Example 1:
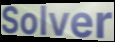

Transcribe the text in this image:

Solver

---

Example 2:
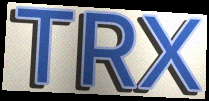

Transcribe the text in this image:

TRX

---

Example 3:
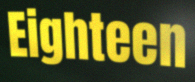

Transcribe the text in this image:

Eighteen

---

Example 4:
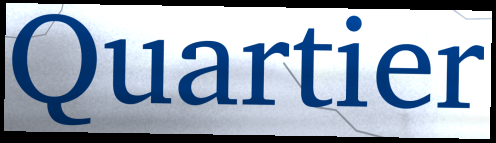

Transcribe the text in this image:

Quartier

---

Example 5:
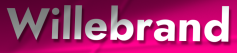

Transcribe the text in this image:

Willebrand